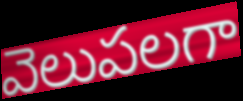
వెలుపలగా